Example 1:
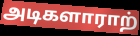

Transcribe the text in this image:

அடிகளாராற்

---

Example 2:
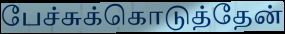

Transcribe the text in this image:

பேச்சுக்கொடுத்தேன்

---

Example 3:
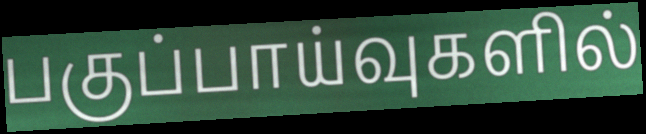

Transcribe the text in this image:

பகுப்பாய்வுகளில்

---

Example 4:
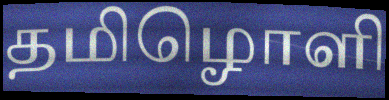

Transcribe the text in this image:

தமிழொளி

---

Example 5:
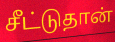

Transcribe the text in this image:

சீட்டுதான்